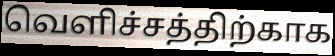
வெளிச்சத்திற்காக